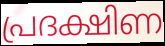
പ്രദക്ഷിണ